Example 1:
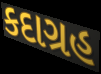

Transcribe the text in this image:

કદાગ્રહ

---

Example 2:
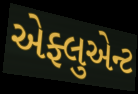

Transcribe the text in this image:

એફ્લુએન્ટ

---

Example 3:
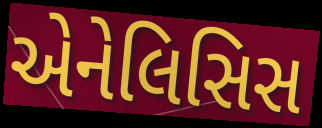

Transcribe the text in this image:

એનેલિસિસ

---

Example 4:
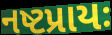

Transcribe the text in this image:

નષ્ટપ્રાયઃ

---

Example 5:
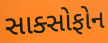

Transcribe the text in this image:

સાક્સોફોન